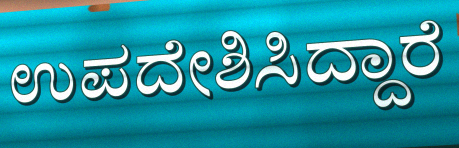
ಉಪದೇಶಿಸಿದ್ದಾರೆ